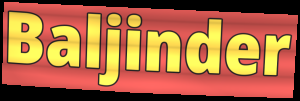
Baljinder